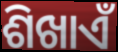
ଶିଖାଏଁ